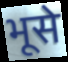
भूसे